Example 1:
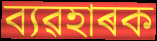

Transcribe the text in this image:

ব্যৱহাৰক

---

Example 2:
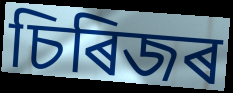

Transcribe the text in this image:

চিৰিজৰ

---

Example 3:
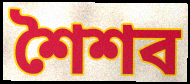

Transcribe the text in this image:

শৈশব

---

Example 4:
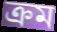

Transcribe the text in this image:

ক্ৰম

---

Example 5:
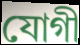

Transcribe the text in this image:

যোগী